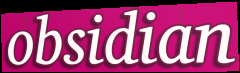
obsidian